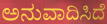
ಅನುವಾದಿಸಿದೆ